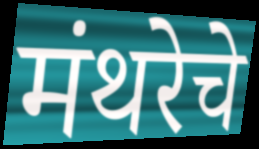
मंथरेचे